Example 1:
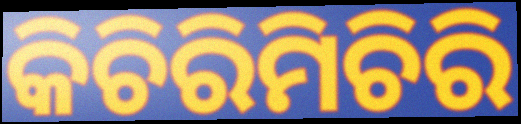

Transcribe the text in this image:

କିଚିରିମିଚିରି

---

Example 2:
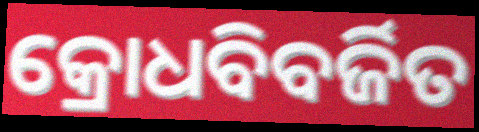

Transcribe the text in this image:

କ୍ରୋଧବିବର୍ଜିତ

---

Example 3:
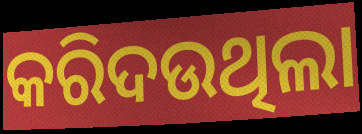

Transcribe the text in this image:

କରିଦଉଥିଲା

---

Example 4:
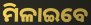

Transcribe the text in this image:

ମିଳାଇବେ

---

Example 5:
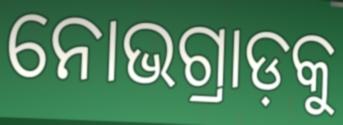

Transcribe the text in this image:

ନୋଭଗ୍ରାଡ଼କୁ